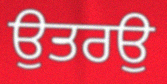
ਉਤਰਉ